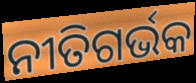
ନୀତିଗର୍ଭକ